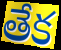
తేక